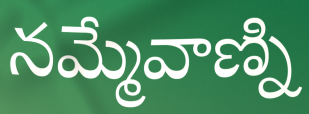
నమ్మేవాణ్ని